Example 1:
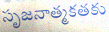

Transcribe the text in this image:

సృజనాత్మకతకు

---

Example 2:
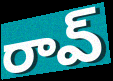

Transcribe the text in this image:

రావ్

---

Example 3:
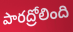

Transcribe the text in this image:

పారద్రోలింది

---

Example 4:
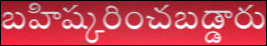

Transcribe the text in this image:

బహిష్కరించబడ్డారు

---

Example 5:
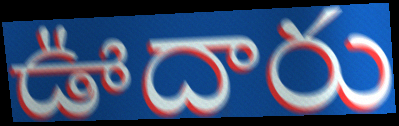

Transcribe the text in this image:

ఊదారు